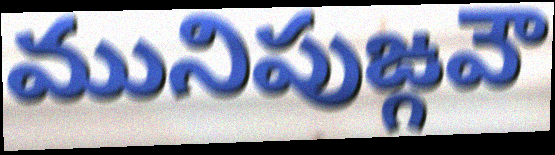
మునిపుఙ్గవౌ